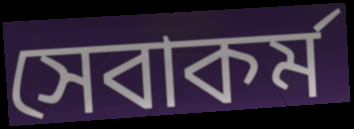
সেবাকর্ম